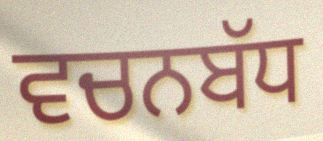
ਵਚਨਬੱਧ